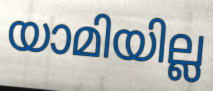
യാമിയില്ല